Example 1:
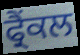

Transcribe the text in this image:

ਫ੍ਰੈਂਕਲ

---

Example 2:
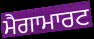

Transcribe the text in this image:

ਮੈਗਾਮਾਰਟ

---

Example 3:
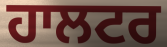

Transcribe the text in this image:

ਹਾਲਟਰ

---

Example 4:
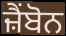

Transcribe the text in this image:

ਜ਼ੈਂਬੋਨ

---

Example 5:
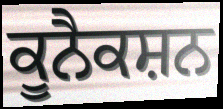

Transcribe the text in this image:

ਕੂਨੈਕਸ਼ਨ